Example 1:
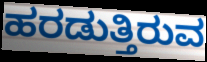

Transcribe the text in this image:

ಹರಡುತ್ತಿರುವ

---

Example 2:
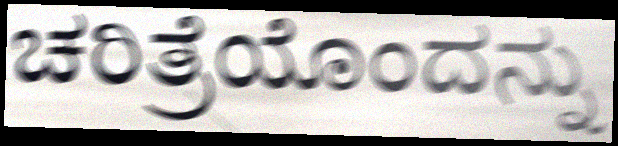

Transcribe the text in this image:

ಚರಿತ್ರೆಯೊಂದನ್ನು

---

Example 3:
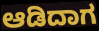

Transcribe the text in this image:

ಆಡಿದಾಗ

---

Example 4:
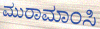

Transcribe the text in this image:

ಮುರಾಮಾಂಸಿ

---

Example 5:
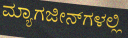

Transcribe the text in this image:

ಮ್ಯಾಗಜೀನ್‌ಗಳಲ್ಲಿ